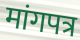
मांगपत्र